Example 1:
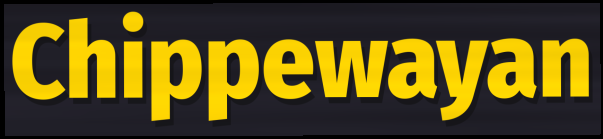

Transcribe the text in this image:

Chippewayan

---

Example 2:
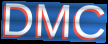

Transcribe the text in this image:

DMC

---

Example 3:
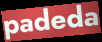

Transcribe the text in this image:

padeda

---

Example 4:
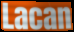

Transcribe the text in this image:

Lacan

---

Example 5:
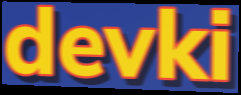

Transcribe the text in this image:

devki